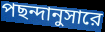
পছন্দানুসারে